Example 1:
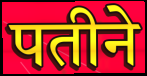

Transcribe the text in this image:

पतीने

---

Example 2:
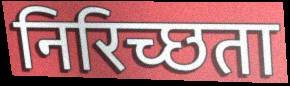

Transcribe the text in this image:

निरिच्छता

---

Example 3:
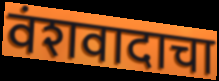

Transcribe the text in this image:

वंशवादाचा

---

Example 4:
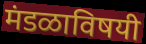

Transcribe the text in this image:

मंडळाविषयी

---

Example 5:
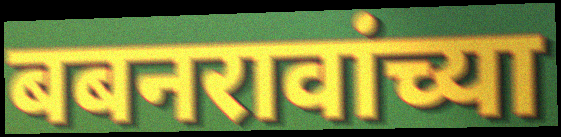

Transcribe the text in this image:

बबनरावांच्या